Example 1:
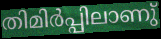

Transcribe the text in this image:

തിമിർപ്പിലാണു്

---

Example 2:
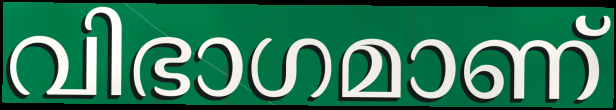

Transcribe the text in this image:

വിഭാഗമാണ്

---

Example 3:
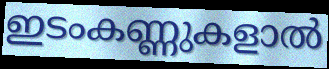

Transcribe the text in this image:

ഇടംകണ്ണുകളാൽ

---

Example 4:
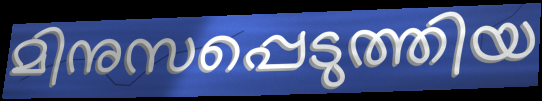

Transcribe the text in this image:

മിനുസപ്പെടുത്തിയ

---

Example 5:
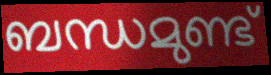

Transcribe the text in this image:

ബന്ധമുണ്ട്